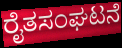
ರೈತಸಂಘಟನೆ